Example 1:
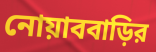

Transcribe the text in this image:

নোয়াববাড়ির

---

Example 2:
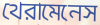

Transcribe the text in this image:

থেরামেনেস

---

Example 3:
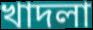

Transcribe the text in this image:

খাদলা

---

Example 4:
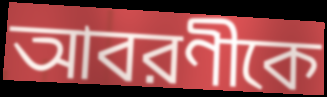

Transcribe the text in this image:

আবরণীকে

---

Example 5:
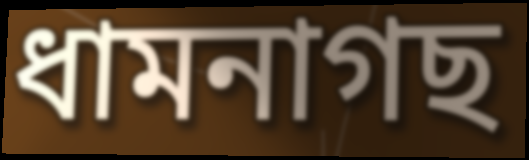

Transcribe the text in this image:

ধামনাগছ